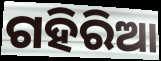
ଗହିରିଆ